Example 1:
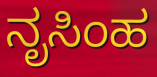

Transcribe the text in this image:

ನೃಸಿಂಹ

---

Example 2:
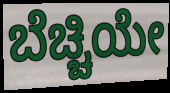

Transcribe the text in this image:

ಬೆಚ್ಚಿಯೇ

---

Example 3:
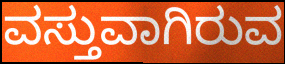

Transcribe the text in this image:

ವಸ್ತುವಾಗಿರುವ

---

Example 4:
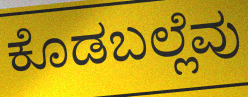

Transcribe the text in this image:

ಕೊಡಬಲ್ಲೆವು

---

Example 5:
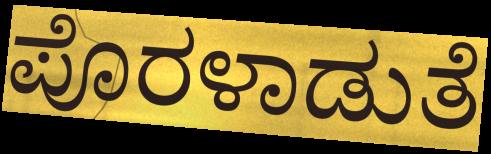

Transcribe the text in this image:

ಪೊರಳಾಡುತೆ